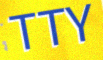
TTY